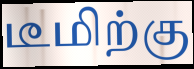
டீமிற்கு